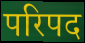
परिपद